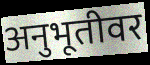
अनुभूतीवर